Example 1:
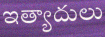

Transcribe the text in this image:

ఇత్యాదులు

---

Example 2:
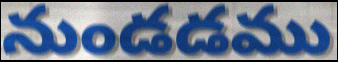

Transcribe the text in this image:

నుండడము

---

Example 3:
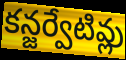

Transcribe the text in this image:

కన్జర్వేటివ్లు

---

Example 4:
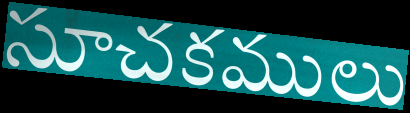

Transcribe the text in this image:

సూచకములు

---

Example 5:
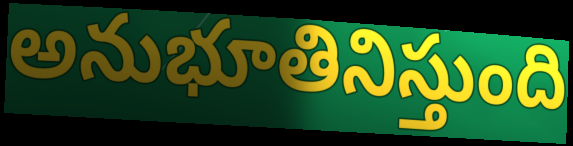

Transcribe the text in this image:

అనుభూతినిస్తుంది